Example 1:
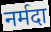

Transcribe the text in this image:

नर्मदा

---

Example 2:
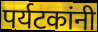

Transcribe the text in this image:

पर्यटकांनी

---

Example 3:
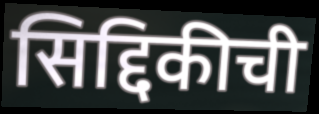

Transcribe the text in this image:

सिद्दिकीची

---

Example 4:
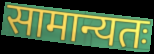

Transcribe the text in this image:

सामान्यतः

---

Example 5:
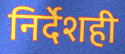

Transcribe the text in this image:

निर्देशही